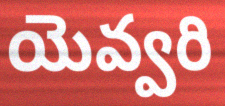
యెవ్వరి